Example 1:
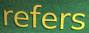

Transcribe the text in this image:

refers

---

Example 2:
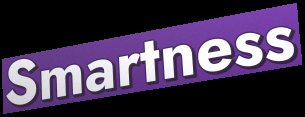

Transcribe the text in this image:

Smartness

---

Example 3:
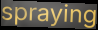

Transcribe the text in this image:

spraying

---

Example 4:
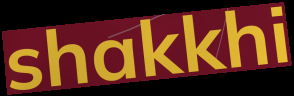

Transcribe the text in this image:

shakkhi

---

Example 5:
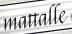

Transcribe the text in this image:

mattalle